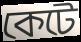
কেটে